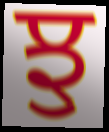
ਝੁ